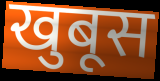
खुबूस